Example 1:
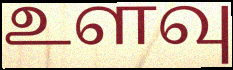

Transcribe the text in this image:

உளவு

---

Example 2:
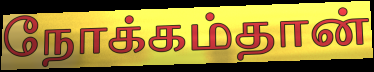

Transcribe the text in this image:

நோக்கம்தான்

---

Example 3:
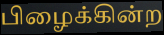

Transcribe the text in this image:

பிழைக்கின்ற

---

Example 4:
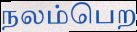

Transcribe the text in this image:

நலம்பெற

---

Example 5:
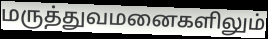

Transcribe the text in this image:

மருத்துவமனைகளிலும்